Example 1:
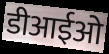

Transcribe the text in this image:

डीआईओ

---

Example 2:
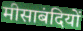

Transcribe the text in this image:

मीसाबंदियों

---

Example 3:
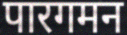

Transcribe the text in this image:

पारगमन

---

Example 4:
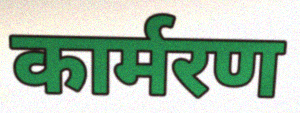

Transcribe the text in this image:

कार्मरण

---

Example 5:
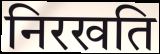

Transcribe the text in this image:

निरखति